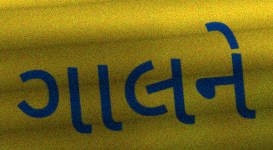
ગાલને